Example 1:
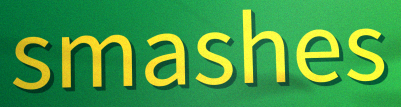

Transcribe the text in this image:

smashes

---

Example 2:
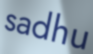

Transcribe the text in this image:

sadhu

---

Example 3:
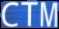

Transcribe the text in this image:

CTM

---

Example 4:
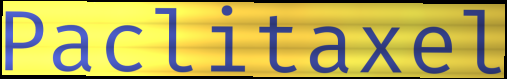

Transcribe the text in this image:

Paclitaxel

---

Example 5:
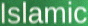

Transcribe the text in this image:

Islamic